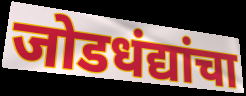
जोडधंद्यांचा